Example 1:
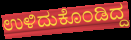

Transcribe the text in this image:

ಉಳಿದುಕೊಂಡಿದ್ದ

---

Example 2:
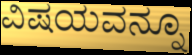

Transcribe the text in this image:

ವಿಷಯವನ್ನೂ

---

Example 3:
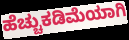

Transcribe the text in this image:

ಹೆಚ್ಚುಕಡಿಮೆಯಾಗಿ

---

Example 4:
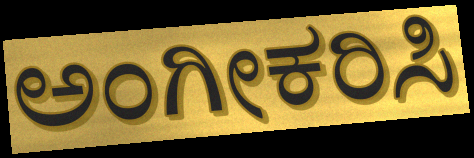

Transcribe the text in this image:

ಅಂಗೀಕರಿಸಿ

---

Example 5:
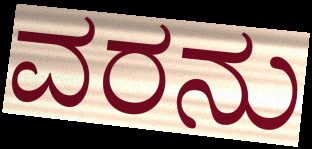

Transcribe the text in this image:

ವರನು